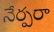
నేర్పరా